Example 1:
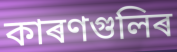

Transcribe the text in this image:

কাৰণগুলিৰ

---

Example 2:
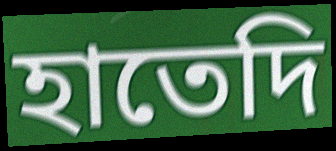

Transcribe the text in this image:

হাতেদি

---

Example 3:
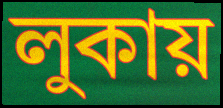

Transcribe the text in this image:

লুকায়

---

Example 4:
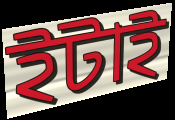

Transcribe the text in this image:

ইটাই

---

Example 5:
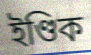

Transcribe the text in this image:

ইণ্ডিক